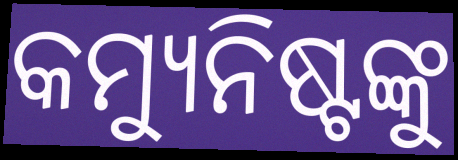
କମ୍ୟୁନିଷ୍ଟଙ୍କୁ